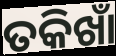
ତକିଖାଁ